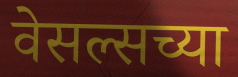
वेसल्सच्या